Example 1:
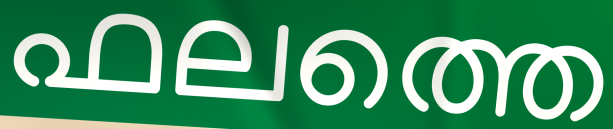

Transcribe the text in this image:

ഫലത്തെ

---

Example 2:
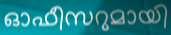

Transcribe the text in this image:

ഓഫീസറുമായി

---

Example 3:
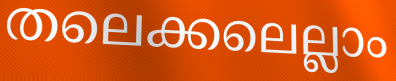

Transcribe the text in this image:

തലെക്കലെല്ലാം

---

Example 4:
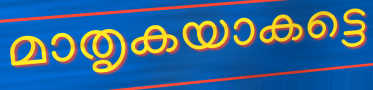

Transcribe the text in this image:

മാതൃകയാകട്ടെ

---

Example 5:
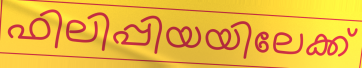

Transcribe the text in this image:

ഫിലിപ്പിയയിലേക്ക്